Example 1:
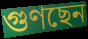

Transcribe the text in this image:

গুণছেন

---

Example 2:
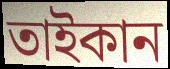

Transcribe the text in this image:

তাইকান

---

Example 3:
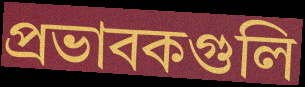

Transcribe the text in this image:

প্রভাবকগুলি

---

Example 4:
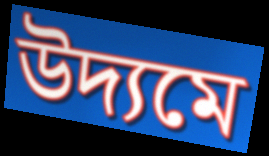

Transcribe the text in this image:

উদ্যমে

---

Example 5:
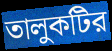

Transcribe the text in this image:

তালুকটির